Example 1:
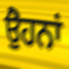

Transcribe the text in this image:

ਉੇਹਨਾਂ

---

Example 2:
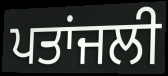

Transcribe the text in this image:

ਪਤਾਂਜਲੀ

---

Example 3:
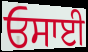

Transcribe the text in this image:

ਓਸਾਈ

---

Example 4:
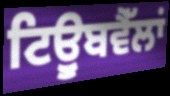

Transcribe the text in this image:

ਟਿਊੁਬਵੈੱਲਾਂ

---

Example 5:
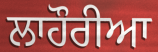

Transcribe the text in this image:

ਲਾਹੌਰੀਆ